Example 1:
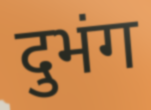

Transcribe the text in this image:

दुभंग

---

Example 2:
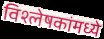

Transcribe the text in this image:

विश्लेषकांमध्ये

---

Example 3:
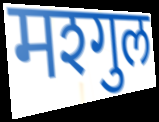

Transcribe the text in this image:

मश्गुल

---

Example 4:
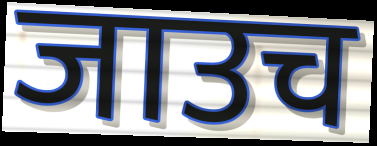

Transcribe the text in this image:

जाउच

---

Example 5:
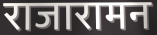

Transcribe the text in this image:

राजारामन